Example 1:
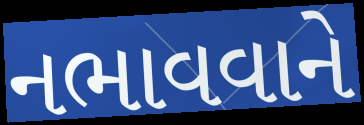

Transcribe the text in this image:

નભાવવાને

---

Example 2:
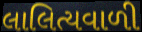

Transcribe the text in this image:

લાલિત્યવાળી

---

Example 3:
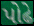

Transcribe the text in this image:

પોઢે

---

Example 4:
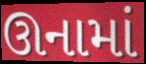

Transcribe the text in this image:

ઊનામાં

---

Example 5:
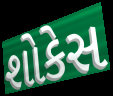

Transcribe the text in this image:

શોકેસ